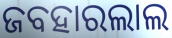
ଜବହାରଲାଲ